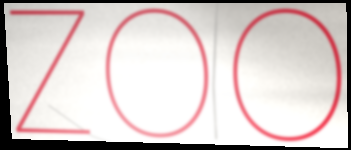
ZOO